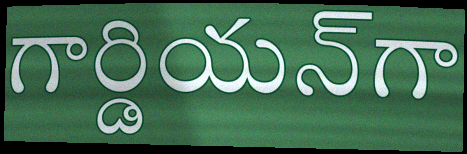
గార్డియన్‌గా